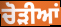
ਚੋੜੀਆਂ